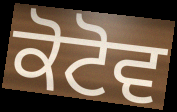
ਕੋਟੋਵ